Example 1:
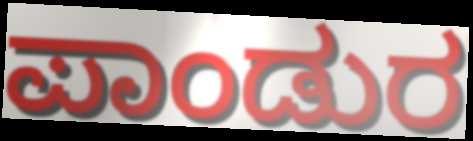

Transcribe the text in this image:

ಪಾಂಡುರ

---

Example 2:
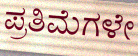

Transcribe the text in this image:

ಪ್ರತಿಮೆಗಳೇ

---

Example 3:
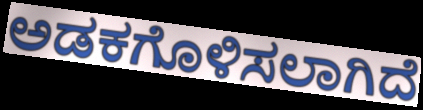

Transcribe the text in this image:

ಅಡಕಗೊಳಿಸಲಾಗಿದೆ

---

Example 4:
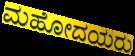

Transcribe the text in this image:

ಮಹೋದಯರು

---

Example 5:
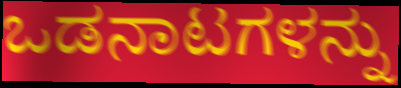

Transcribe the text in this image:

ಒಡನಾಟಗಳನ್ನು